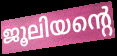
ജൂലിയന്റെ